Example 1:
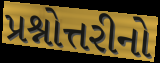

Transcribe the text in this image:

પ્રશ્નોત્તરીનો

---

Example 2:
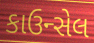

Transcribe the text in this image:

કાઉન્સેલ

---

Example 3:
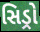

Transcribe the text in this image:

સિડ્રો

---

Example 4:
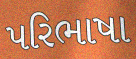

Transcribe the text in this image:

પરિભાષા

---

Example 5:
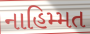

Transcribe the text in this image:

નાહિમ્મત